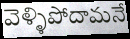
వెళ్ళిపోదామనే